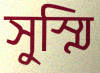
সুস্মি